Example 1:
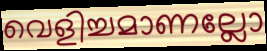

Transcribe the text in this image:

വെളിച്ചമാണല്ലോ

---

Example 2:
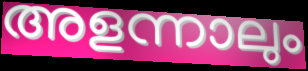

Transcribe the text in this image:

അളന്നാലും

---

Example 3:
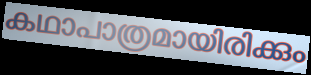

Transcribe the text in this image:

കഥാപാത്രമായിരിക്കും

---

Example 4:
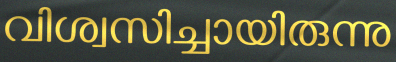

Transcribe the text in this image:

വിശ്വസിച്ചായിരുന്നു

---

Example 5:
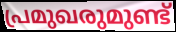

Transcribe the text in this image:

പ്രമുഖരുമുണ്ട്